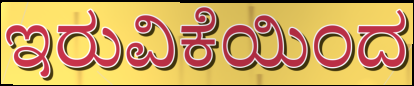
ಇರುವಿಕೆಯಿಂದ